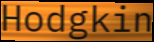
Hodgkin